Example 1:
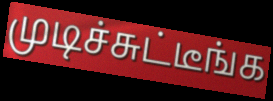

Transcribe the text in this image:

முடிச்சுட்டீங்க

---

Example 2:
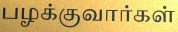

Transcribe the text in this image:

பழக்குவார்கள்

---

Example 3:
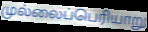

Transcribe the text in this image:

முல்லைப்பெரியாறு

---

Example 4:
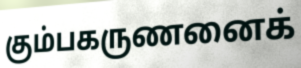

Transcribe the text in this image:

கும்பகருணனைக்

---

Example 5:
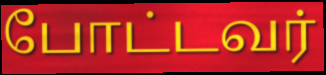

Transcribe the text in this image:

போட்டவர்